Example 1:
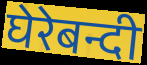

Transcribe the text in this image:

घेरेबन्दी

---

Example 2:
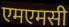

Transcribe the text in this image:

एमएमसी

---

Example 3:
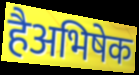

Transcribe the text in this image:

हैअभिषेक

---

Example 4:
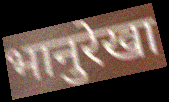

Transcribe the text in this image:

भानुरेखा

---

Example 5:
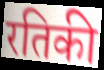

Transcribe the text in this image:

रतिकी